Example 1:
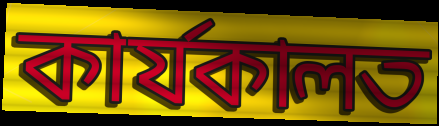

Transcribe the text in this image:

কাৰ্যকালত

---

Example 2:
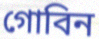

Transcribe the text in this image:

গোবিন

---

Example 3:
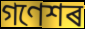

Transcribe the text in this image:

গণেশৰ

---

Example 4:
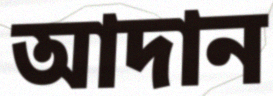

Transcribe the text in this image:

আদান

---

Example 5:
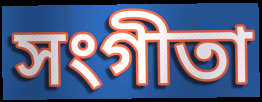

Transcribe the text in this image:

সংগীতা